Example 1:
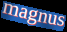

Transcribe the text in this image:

magnus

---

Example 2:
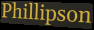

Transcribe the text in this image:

Phillipson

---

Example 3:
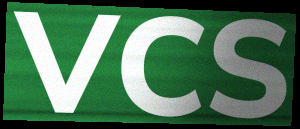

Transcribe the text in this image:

VCS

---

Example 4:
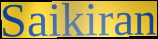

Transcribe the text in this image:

Saikiran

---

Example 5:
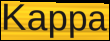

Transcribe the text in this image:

Kappa